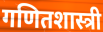
गणितशास्त्री